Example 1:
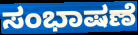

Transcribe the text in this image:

ಸಂಭಾಷಣೆ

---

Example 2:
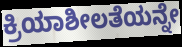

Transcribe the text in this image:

ಕ್ರಿಯಾಶೀಲತೆಯನ್ನೇ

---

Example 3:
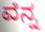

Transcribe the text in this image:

ವೆನ್ನ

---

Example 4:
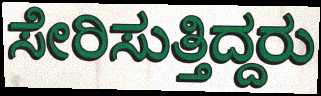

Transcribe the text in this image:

ಸೇರಿಸುತ್ತಿದ್ದರು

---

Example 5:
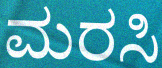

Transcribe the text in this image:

ಮರಸಿ